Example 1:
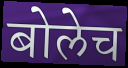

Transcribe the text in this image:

बोलेच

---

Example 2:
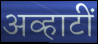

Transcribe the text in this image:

अव्हाटीं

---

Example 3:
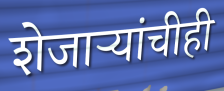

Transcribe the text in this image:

शेजाऱ्यांचीही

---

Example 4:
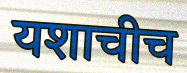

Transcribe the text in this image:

यशाचीच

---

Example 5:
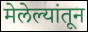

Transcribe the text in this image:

मेलेल्यांतून